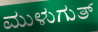
ಮುಳುಗುತ್